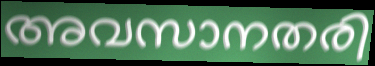
അവസാനതരി